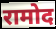
रामोद